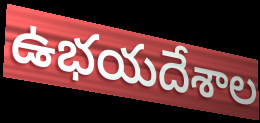
ఉభయదేశాల